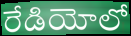
రేడియోలో